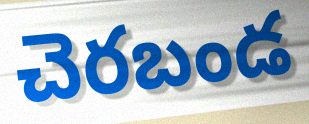
చెరబండ